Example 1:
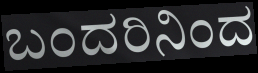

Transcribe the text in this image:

ಬಂದರಿನಿಂದ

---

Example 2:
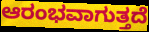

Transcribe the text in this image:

ಆರಂಭವಾಗುತ್ತದೆ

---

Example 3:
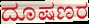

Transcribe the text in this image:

ದೂಷಣರ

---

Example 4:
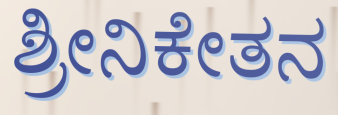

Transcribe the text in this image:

ಶ್ರೀನಿಕೇತನ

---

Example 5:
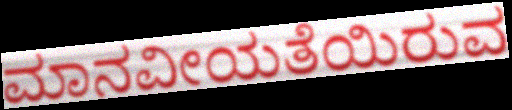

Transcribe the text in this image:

ಮಾನವೀಯತೆಯಿರುವ